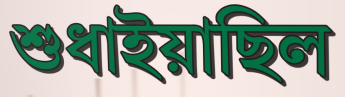
শুধাইয়াছিল